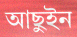
আছুইন